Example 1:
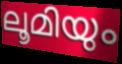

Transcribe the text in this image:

ലൂമിയും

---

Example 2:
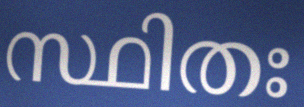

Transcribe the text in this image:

സ്ഥിതഃ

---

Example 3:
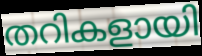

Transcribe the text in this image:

തറികളായി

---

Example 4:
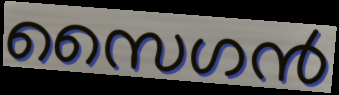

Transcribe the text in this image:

സൈഗൻ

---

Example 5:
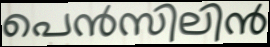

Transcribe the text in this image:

പെൻസിലിൻ